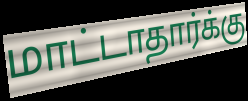
மாட்டாதார்க்கு